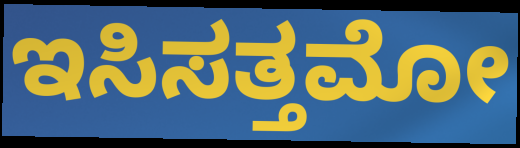
ಇಸಿಸತ್ತಮೋ